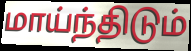
மாய்ந்திடும்